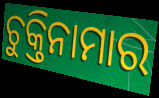
ଚୁକ୍ତିନାମାର